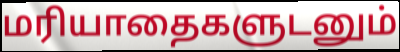
மரியாதைகளுடனும்